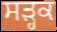
ਸੜ੍ਹਕ